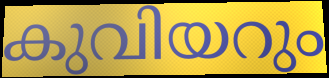
കുവിയറും